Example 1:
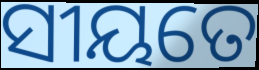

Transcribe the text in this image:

ସୀୟତେ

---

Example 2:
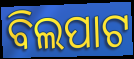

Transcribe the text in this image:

ବିଲପାଟ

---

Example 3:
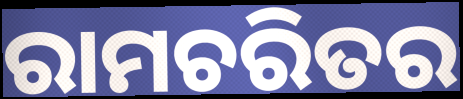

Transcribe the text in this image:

ରାମଚରିତର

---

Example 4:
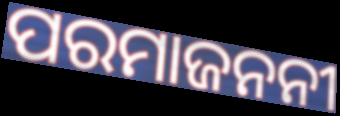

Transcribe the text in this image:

ପରମାଜନନୀ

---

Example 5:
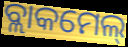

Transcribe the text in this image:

ବ୍ଲାକମେଲ୍